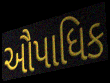
ઔપાધિક